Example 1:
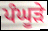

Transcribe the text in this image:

ਪੰਘੂੜੇ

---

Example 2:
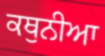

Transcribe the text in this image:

ਕਥੁਨੀਆ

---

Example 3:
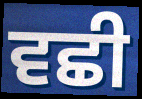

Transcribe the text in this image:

ਵਛੀ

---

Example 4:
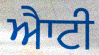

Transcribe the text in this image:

ਐਾਟੀ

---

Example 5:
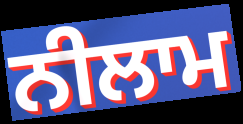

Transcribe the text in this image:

ਨੀਲਾਮ